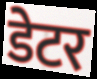
डेटर